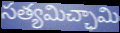
సత్యమిచ్ఛామి